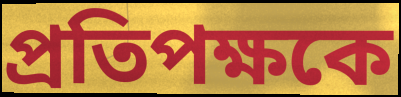
প্রতিপক্ষকে